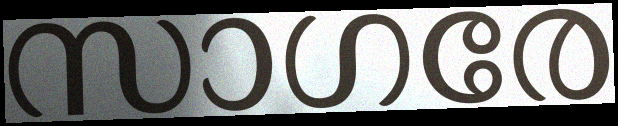
സാഗരേ